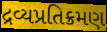
દ્રવ્યપ્રતિક્રમણ